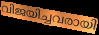
വിജയിച്ചവരായി